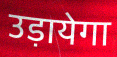
उड़ायेगा